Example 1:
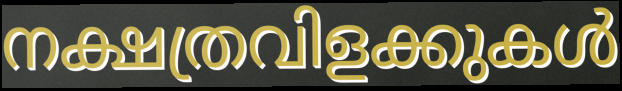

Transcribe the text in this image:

നക്ഷത്രവിളക്കുകൾ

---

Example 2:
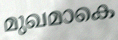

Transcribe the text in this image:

മുഖമാകെ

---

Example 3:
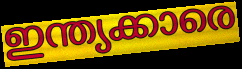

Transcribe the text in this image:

ഇന്ത്യക്കാരെ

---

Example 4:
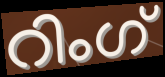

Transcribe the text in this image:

റിംഗ്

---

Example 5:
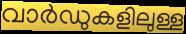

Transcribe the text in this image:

വാർഡുകളിലുള്ള